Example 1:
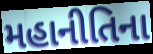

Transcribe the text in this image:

મહાનીતિના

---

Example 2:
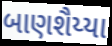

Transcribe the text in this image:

બાણશૈય્યા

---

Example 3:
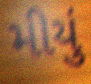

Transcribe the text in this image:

મીયું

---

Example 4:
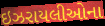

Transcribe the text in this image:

ઇઝરાયલીઓના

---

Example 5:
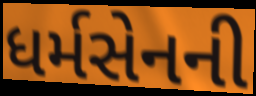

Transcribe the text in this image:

ધર્મસેનની